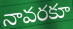
నావరకూ